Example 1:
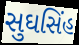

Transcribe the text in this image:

સુઘસિંહ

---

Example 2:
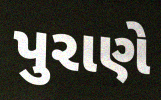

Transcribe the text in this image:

પુરાણે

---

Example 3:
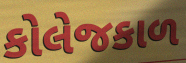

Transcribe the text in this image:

કોલેજકાળ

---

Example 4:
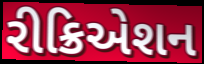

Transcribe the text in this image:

રીક્રિએશન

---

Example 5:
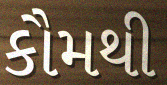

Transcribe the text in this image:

કૌમથી